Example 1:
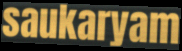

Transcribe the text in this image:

saukaryam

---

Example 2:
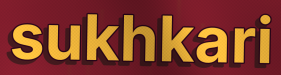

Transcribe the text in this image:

sukhkari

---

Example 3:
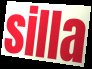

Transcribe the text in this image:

silla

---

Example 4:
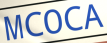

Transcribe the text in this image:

MCOCA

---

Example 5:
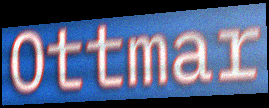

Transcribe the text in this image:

Ottmar